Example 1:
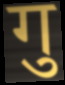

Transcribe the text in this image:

गु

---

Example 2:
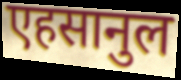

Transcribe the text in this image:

एहसानुल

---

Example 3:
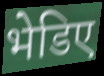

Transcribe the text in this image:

भेडिए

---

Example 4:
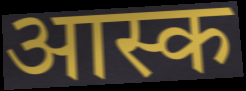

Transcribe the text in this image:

आस्क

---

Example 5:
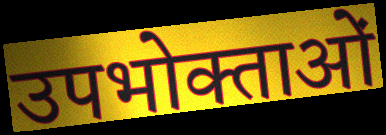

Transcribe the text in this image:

उपभोक्‍ताओं